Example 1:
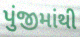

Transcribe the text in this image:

પુંજીમાંથી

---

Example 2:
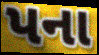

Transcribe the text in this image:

પના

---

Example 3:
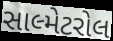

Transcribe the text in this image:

સાલ્મેટરોલ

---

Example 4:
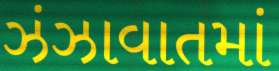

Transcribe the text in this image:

ઝંઝાવાતમાં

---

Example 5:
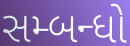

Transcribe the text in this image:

સમ્બન્ધો